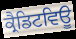
ਕ੍ਰੈਡਿਟਵਿਊ